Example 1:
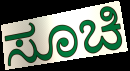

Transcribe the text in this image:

ಸೂಚಿ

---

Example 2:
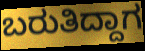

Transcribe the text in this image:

ಬರುತಿದ್ದಾಗ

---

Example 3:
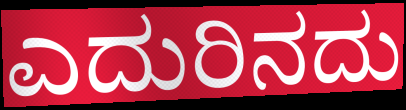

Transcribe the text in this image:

ಎದುರಿನದು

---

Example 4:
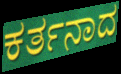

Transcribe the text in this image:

ಕರ್ತನಾದ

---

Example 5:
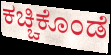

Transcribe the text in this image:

ಕಚ್ಚಿಕೊಂಡೆ